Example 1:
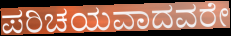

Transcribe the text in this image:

ಪರಿಚಯವಾದವರೇ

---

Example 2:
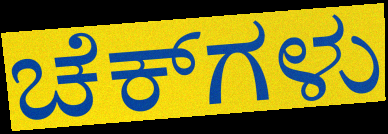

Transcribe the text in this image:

ಚೆಕ್‌ಗಳು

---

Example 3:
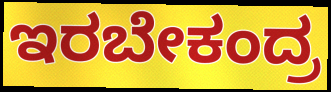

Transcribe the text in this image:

ಇರಬೇಕಂದ್ರ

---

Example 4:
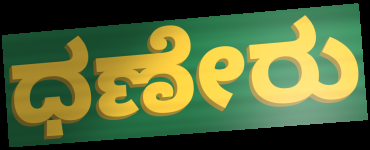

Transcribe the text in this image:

ಧಣೇರು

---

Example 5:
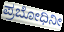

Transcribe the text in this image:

ಪ್ರಬೋಧಿನೀ